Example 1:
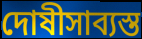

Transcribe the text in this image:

দোষীসাব্যস্ত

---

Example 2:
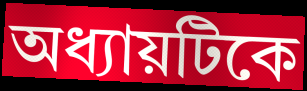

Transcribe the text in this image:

অধ্যায়টিকে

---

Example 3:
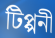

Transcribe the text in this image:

টিপ্পনী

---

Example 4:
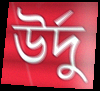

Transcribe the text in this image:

উর্দু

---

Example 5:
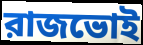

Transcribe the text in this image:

রাজভোই